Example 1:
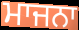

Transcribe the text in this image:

ਮਾਜਨਾ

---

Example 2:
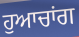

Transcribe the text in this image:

ਹੁਆਚਾਂਗ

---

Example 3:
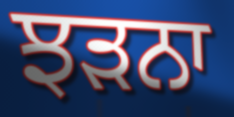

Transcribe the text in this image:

ਝੜਨਾ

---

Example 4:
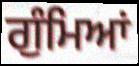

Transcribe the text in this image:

ਗੁੰਮਿਆਂ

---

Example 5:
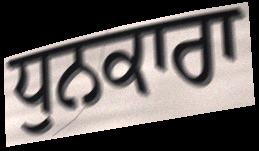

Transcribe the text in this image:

ਧੁਨਕਾਰਾ